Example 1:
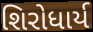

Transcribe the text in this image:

શિરોધાર્ય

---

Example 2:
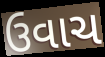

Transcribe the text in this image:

ઉવાચ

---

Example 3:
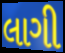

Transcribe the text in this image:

લાગી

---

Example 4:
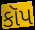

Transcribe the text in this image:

કૉપ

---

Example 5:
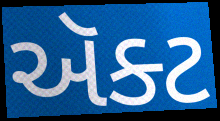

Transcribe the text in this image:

ઍૅક્ટ